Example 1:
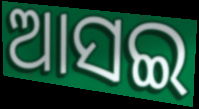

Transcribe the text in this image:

ଆସଇ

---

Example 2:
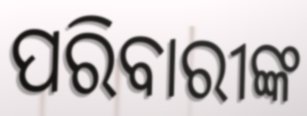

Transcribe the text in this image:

ପରିବାରୀଙ୍କ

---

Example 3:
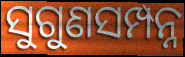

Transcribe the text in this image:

ସୁଗୁଣସମ୍ପନ୍ନ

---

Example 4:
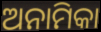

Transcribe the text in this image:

ଅନାମିକା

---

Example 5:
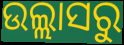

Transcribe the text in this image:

ଉଲ୍ଲାସରୁ